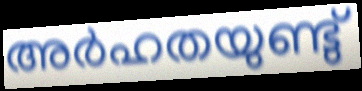
അർഹതയുണ്ടു്